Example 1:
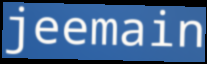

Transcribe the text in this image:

jeemain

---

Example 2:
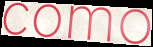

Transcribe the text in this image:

como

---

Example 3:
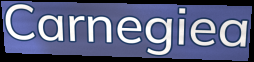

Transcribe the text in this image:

Carnegiea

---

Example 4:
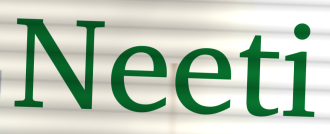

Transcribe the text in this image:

Neeti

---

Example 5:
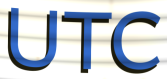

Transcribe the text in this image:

UTC